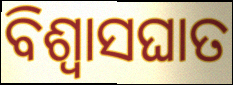
ବିଶ୍ବାସଘାତ